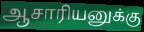
ஆசாரியனுக்கு